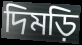
দিমড়ি